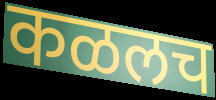
कळलच